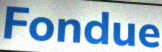
Fondue